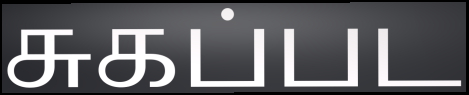
சுகப்பட